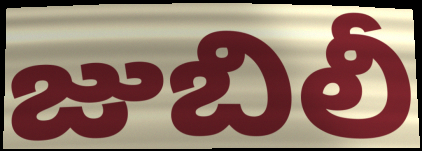
జుబిలీ